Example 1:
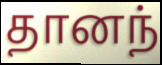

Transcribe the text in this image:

தானந்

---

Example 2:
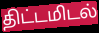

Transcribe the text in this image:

திட்டமிடல்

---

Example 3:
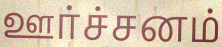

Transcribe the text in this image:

ஊர்ச்சனம்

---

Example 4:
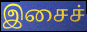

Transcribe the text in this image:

இசைச்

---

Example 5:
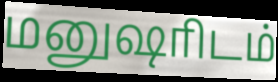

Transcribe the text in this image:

மனுஷரிடம்